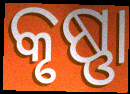
କୃଷ୍ଣା